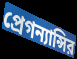
প্রেগন্যান্সির